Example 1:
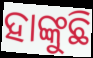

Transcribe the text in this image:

ହାଙ୍କୁଛି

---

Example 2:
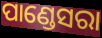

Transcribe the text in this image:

ପାଣ୍ଡେସରା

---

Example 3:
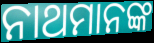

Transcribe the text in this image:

ନାଥମାନଙ୍କ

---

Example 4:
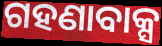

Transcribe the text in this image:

ଗହଣାବାକ୍ସ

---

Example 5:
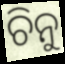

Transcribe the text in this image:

ଚିନୁ